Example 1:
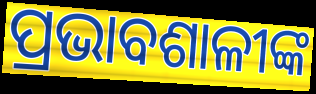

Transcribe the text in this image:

ପ୍ରଭାବଶାଳୀଙ୍କ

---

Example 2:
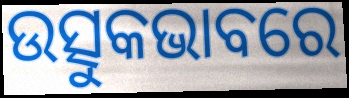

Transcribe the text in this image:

ଉତ୍ସୁକଭାବରେ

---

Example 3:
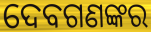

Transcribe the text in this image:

ଦେବଗଣଙ୍କର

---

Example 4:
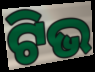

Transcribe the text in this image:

ଟିଭ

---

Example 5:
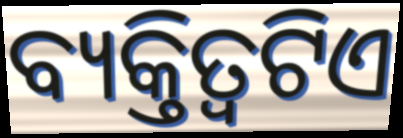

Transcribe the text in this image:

ବ୍ୟକ୍ତିତ୍ବଟିଏ